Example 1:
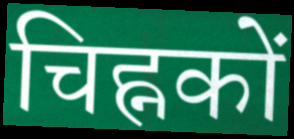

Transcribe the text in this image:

चिह्नकों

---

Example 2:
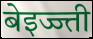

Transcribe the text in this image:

बेइज्ज्ती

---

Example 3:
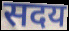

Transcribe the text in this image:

सदय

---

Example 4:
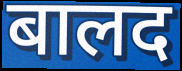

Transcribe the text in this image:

बालद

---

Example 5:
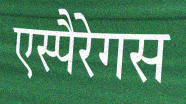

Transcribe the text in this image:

एस्पैरेगस